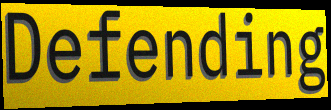
Defending